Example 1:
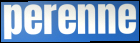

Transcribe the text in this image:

perenne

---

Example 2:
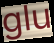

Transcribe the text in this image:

glu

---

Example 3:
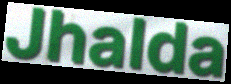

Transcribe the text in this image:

Jhalda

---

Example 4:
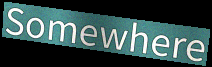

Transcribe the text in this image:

Somewhere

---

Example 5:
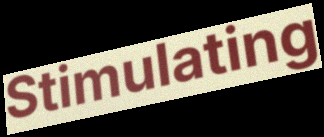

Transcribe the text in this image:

Stimulating